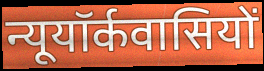
न्यूयॉर्कवासियों